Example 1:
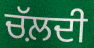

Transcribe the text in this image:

ਚੱਲ਼ਦੀ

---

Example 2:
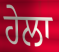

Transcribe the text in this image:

ਹੇਲਾ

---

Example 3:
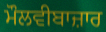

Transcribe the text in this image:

ਮੌਲਵੀਬਾਜ਼ਾਰ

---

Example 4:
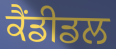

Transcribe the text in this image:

ਕੈਂਡੀਡਲ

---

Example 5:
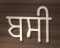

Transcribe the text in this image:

ਬਸੀ